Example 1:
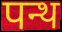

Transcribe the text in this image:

पन्थ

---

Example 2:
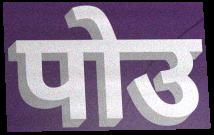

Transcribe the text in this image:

पोउ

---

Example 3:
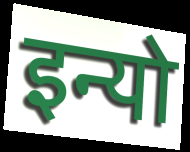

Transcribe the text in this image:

इन्यो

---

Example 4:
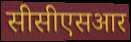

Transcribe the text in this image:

सीसीएसआर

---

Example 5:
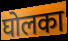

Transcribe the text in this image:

घोलका